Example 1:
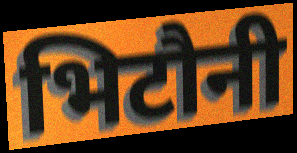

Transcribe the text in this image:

भिटौनी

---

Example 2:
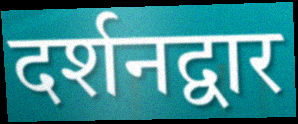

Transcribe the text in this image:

दर्शनद्वार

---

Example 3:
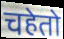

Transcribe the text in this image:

चहेतो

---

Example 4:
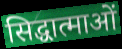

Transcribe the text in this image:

सिद्धात्माओं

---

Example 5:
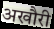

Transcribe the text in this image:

अखौरी